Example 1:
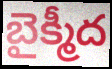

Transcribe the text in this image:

బైక్మీద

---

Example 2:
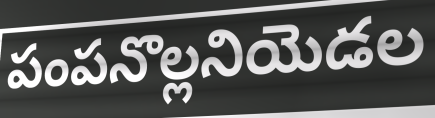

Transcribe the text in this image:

పంపనొల్లనియెడల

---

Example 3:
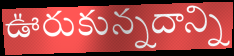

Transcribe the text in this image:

ఊరుకున్నదాన్ని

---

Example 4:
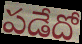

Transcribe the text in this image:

పడేదో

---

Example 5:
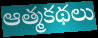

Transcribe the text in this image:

ఆత్మకథలు